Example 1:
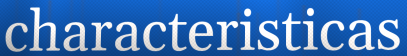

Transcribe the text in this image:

characteristicas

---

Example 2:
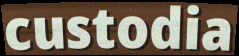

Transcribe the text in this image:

custodia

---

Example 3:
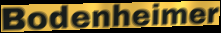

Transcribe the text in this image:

Bodenheimer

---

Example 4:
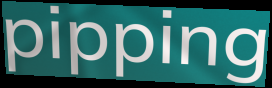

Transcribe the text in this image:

pipping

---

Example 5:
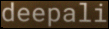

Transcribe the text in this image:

deepali